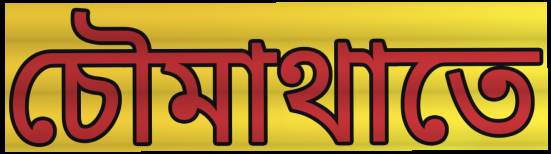
চৌমাথাতে